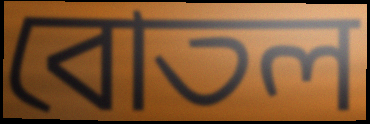
বোতল